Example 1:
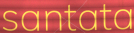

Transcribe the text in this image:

santata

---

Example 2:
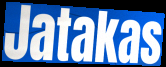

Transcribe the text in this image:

Jatakas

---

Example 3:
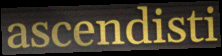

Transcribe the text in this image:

ascendisti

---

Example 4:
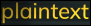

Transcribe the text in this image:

plaintext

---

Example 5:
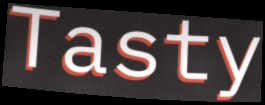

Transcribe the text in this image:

Tasty